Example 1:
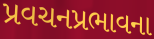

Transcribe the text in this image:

પ્રવચનપ્રભાવના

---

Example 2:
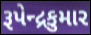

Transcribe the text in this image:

રૂપેન્દ્રકુમાર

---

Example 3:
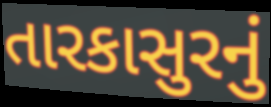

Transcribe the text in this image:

તારકાસુરનું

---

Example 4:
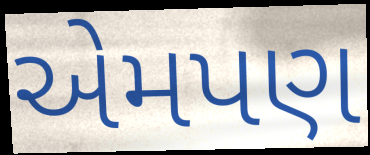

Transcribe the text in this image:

એમપણ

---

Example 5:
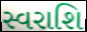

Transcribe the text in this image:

સ્વરાશિ